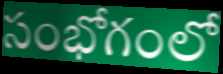
సంభోగంలో